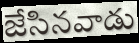
జేసినవాడు